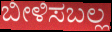
ಬೀಳಿಸಬಲ್ಲ